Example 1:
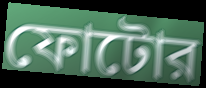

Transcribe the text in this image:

ফোটোর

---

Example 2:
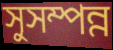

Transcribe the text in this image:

সুসম্পন্ন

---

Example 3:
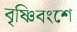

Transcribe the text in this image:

বৃষ্ণিবংশে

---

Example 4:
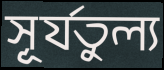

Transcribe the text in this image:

সূর্যতুল্য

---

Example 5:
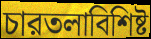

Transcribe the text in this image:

চারতলাবিশিষ্ট